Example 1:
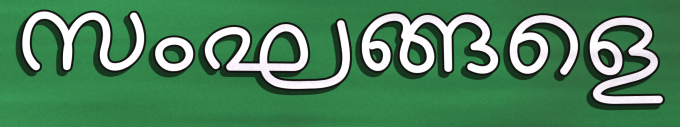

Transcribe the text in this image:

സംഘങ്ങളെ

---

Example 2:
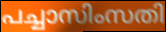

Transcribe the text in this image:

പച്ചാസിംസതി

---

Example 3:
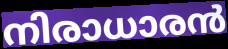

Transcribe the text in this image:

നിരാധാരൻ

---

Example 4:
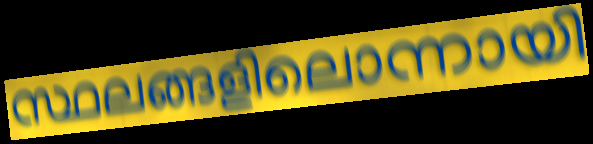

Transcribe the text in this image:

സ്ഥലങ്ങളിലൊന്നായി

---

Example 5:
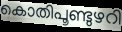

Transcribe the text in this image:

കൊതിപൂണ്ടുഴറി